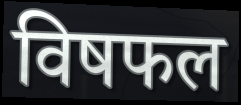
विषफल